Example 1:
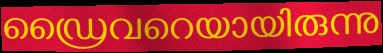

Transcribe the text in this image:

ഡ്രൈവറെയായിരുന്നു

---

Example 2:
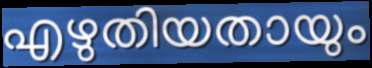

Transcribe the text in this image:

എഴുതിയതായും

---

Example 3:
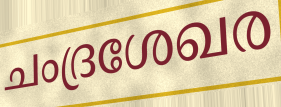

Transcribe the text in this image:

ചംദ്രശേഖര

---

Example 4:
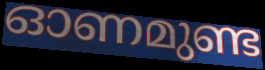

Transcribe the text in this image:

ഓണമുണ്ട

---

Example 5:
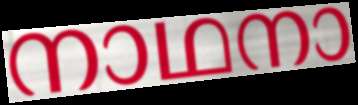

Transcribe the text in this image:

നാഥനാ